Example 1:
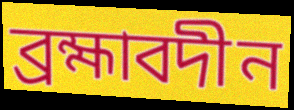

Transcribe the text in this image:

ব্ৰহ্মাবদীন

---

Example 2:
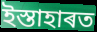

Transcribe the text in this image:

ইস্তাহাৰত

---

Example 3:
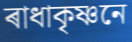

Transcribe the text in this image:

ৰাধাকৃষ্ণনে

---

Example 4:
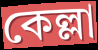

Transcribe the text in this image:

কেল্লা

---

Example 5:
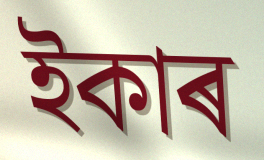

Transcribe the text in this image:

ইকাৰ